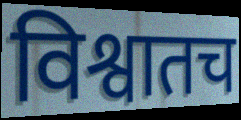
विश्वातच